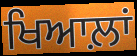
ਖਿਆਲ਼ਾਂ